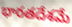
భారతదేశమే